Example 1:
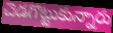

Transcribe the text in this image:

చెడగొట్టుకున్నారు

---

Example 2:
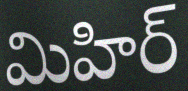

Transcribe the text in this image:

మిహిర్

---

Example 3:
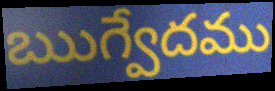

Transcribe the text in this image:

ఋగ్వేదము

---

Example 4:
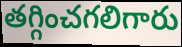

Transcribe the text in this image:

తగ్గించగలిగారు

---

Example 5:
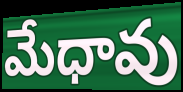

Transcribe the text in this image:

మేధావు